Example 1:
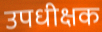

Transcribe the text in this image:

उपधीक्षक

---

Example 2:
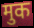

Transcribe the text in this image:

मुक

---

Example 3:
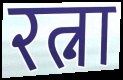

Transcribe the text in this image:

रत्ना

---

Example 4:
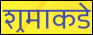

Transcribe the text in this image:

श्रमाकडे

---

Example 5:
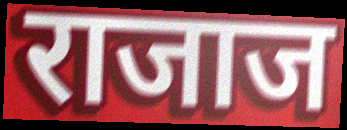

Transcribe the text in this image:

राजाज